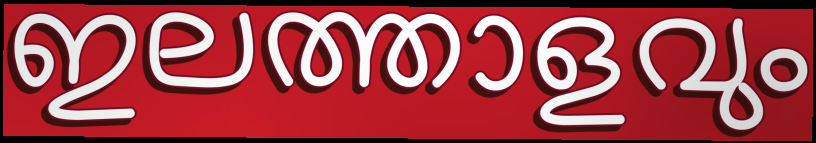
ഇലത്താളവും